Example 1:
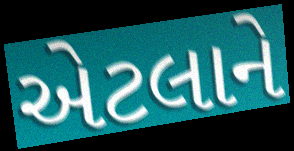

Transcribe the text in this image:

એટલાને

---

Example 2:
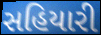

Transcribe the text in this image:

સહિયારી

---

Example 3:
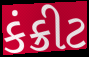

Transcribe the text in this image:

કંક્રીટ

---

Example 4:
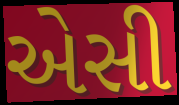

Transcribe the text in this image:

એસી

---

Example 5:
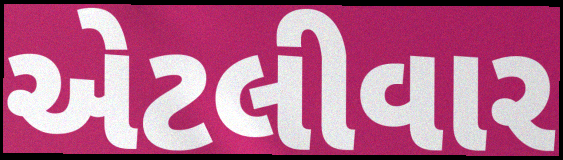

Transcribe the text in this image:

એટલીવાર